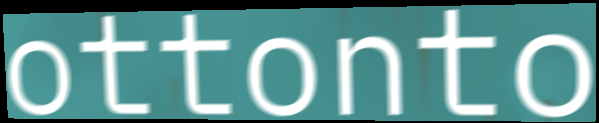
ottonto